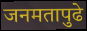
जनमतापुढे